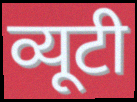
व्यूटी